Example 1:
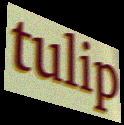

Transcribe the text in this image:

tulip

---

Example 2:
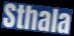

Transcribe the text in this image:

Sthala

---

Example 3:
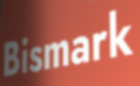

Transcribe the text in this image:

Bismark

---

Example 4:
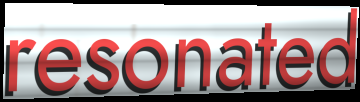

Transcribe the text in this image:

resonated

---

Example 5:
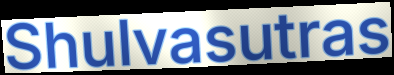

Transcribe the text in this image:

Shulvasutras